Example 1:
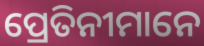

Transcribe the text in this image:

ପ୍ରେତିନୀମାନେ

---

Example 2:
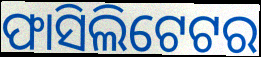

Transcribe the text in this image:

ଫାସିଲିଟେଟର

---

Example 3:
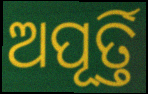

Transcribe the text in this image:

ଅପୂର୍ତ୍ତି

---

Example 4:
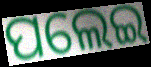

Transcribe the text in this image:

ପଲେଇ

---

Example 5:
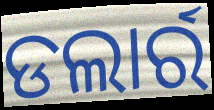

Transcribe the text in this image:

ଡଲାର୍ର